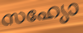
സഹ്യോ